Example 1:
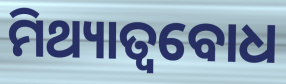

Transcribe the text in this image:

ମିଥ୍ୟାତ୍ୱବୋଧ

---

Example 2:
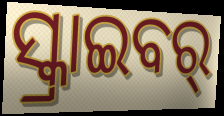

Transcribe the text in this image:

ସ୍କ୍ରାଇବର୍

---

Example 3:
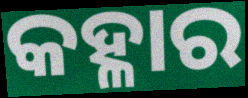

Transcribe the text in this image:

କହ୍ଳାର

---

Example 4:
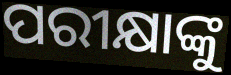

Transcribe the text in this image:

ପରୀକ୍ଷାଙ୍କୁ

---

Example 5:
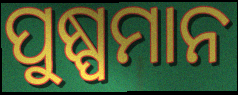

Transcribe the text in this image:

ପୁଷ୍ପମାନ